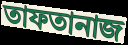
তাফতানাজ